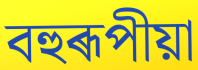
বহুৰূপীয়া